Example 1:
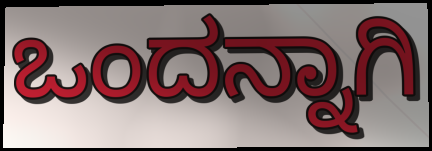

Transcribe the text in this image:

ಒಂದನ್ನಾಗಿ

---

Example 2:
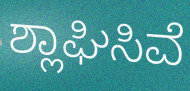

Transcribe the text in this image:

ಶ್ಲಾಘಿಸಿವೆ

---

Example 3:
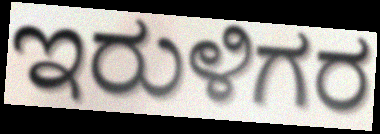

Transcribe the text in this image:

ಇರುಳಿಗರ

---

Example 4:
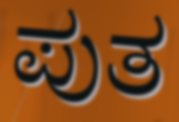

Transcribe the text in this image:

ಪುತ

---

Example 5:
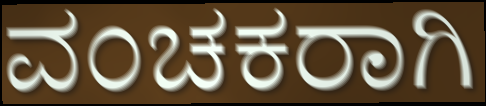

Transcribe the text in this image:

ವಂಚಕರಾಗಿ